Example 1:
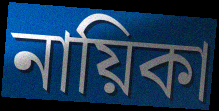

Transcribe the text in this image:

নায়িকা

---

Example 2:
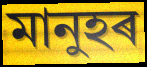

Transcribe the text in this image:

মানুহৰ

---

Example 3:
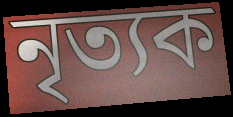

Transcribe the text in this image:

নৃত্যক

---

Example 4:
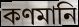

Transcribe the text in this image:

কণমানি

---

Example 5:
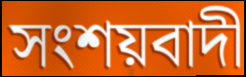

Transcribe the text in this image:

সংশয়বাদী